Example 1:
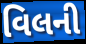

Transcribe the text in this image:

વિલની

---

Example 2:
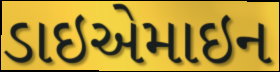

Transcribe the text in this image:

ડાઇએમાઇન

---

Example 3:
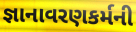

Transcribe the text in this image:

જ્ઞાનાવરણકર્મની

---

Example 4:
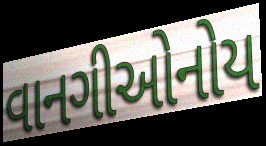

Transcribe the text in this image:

વાનગીઓનોય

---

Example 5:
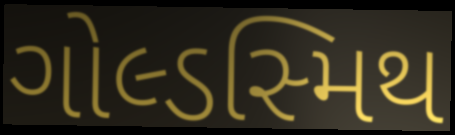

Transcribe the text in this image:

ગોલ્ડસ્મિથ